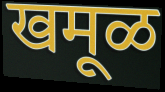
खमूळ